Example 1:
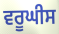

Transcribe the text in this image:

ਵਰੂਘੀਸ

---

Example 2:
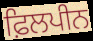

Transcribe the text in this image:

ਫ਼ਿਲਪੀਨ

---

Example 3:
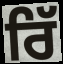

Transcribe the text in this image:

ਰਿੱ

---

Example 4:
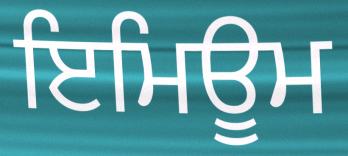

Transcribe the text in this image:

ਇਮਿਊਮ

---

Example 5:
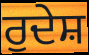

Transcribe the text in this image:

ਰੁਦੇਸ਼